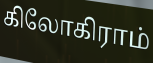
கிலோகிராம்